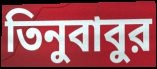
তিনুবাবুর